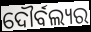
ଦୌର୍ବଲ୍ୟର